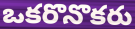
ఒకరొనొకరు